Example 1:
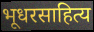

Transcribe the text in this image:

भूधरसाहित्य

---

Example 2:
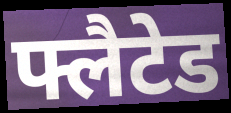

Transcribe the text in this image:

फ्लैटेड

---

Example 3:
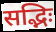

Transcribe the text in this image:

सद्भिः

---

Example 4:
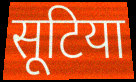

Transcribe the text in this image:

सूटिया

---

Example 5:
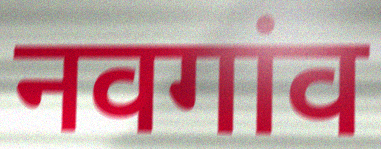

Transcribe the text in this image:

नवगांव